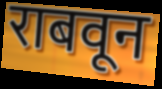
राबवून